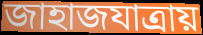
জাহাজযাত্রায়